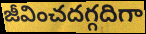
జీవించదగ్గదిగా